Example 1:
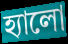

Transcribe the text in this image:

হ্যালো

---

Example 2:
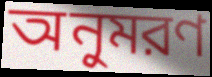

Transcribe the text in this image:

অনুমরণ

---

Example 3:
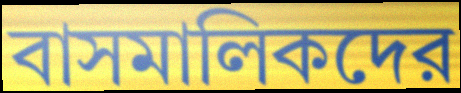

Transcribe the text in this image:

বাসমালিকদের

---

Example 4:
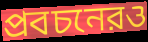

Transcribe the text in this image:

প্রবচনেরও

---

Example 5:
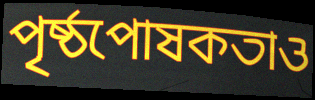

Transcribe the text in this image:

পৃষ্ঠপোষকতাও